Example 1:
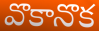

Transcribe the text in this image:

వొకానొక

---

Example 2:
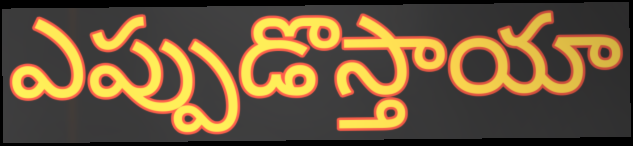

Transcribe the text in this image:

ఎప్పుడొస్తాయా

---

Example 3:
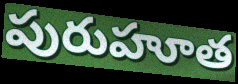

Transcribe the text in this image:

పురుహూత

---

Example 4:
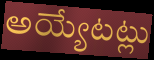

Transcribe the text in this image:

అయ్యేటట్లు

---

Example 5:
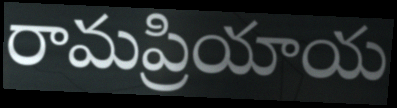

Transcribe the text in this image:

రామప్రియాయ